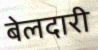
बेलदारी